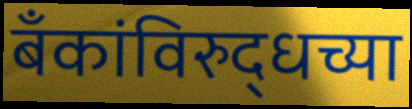
बँकांविरुद्धच्या